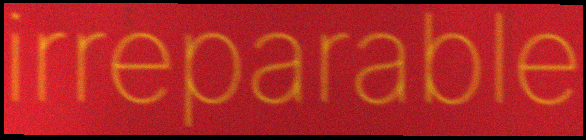
irreparable